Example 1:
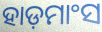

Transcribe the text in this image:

ହାଡ଼ମାଂସ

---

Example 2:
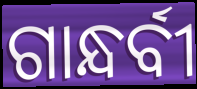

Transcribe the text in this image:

ଗାନ୍ଧର୍ବୀ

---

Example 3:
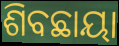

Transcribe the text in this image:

ଶିବଛାୟା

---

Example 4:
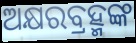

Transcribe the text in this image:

ଅକ୍ଷରବ୍ରହ୍ମଙ୍କ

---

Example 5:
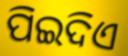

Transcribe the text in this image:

ପିଇଦିଏ